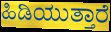
ಹಿಡಿಯುತ್ತಾರೆ